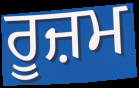
ਰੂਜ਼ਮ